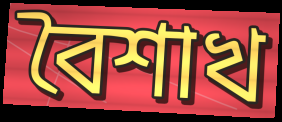
বৈশাখ